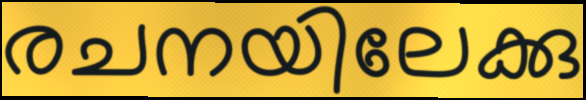
രചനയിലേക്കു